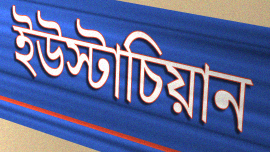
ইউস্টাচিয়ান